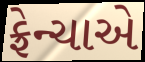
ફ્રેન્ચાએ